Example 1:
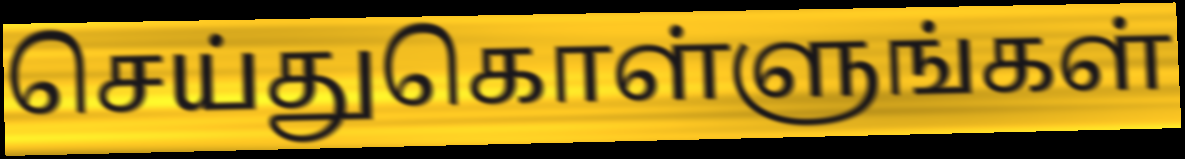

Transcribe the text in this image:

செய்துகொள்ளுங்கள்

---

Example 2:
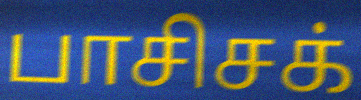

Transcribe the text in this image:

பாசிசக்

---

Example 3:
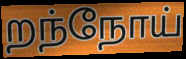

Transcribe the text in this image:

றந்நோய்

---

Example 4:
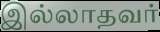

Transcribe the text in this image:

இல்லாதவர்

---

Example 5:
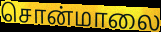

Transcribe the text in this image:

சொன்மாலை